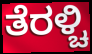
ತೆರಳ್ಚಿ